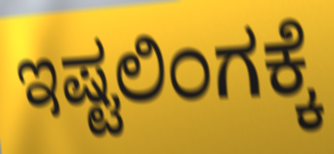
ಇಷ್ಟಲಿಂಗಕ್ಕೆ